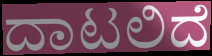
ದಾಟಲಿದೆ